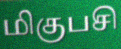
மிகுபசி